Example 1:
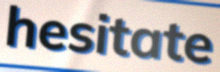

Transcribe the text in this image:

hesitate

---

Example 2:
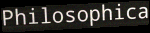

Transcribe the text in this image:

Philosophica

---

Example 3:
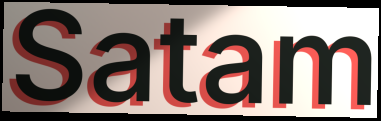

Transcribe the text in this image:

Satam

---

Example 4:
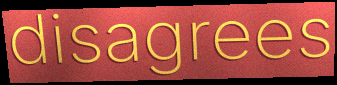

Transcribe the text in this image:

disagrees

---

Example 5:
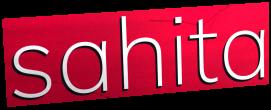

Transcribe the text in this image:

sahita